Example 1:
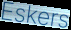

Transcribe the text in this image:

Eskers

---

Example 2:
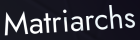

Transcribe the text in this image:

Matriarchs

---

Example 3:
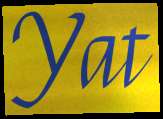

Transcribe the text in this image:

Yat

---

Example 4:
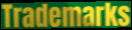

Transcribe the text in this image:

Trademarks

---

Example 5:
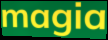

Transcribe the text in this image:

magia